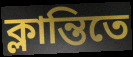
ক্লান্তিতে